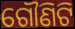
ଗୌଣିଟି